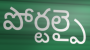
పోర్టల్పై